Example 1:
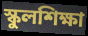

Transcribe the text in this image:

স্কুলশিক্ষা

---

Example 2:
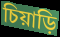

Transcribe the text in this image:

চিয়াড়ি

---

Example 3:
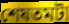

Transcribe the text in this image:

শেষতমটা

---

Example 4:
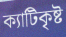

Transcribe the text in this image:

ক্যাটিকৃষ্ট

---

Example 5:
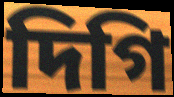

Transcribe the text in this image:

দিগি